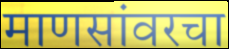
माणसांवरचा